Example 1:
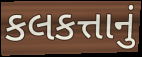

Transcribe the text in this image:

કલકત્તાનું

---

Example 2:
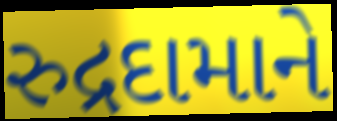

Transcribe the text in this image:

રુદ્રદામાને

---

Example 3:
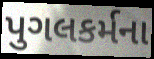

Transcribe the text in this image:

પુગલકર્મના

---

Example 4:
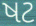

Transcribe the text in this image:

ષટ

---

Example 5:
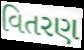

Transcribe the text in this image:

વિતરણ